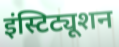
इंस्टिट्यूशन